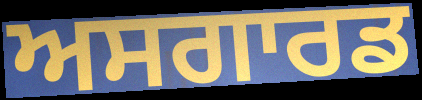
ਅਸਗਾਰਡ